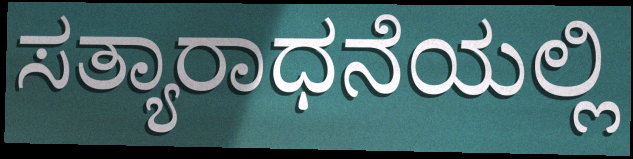
ಸತ್ಯಾರಾಧನೆಯಲ್ಲಿ